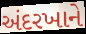
અંદરખાને